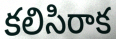
కలిసిరాక